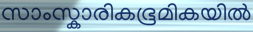
സാംസ്കാരികഭൂമികയിൽ